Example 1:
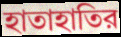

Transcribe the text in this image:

হাতাহাতির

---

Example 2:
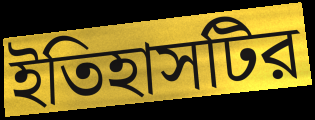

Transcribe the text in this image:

ইতিহাসটির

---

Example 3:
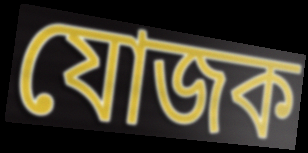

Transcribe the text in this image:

যোজক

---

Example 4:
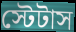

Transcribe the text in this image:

স্টেটাস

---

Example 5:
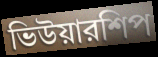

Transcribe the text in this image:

ভিউয়ারশিপ